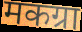
मकग्रा